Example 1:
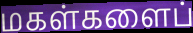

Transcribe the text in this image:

மகள்களைப்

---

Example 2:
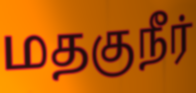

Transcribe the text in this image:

மதகுநீர்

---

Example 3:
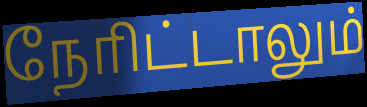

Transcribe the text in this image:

நேரிட்டாலும்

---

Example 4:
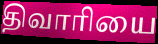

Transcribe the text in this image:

திவாரியை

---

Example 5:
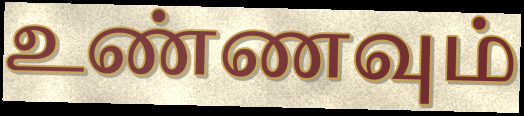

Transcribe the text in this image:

உண்ணவும்